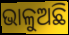
ଭାଳୁଅଛି